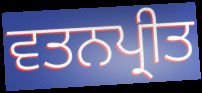
ਵਤਨਪ੍ਰੀਤ